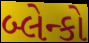
બ્લેન્કો